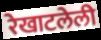
रेखाटलेली